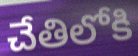
చేతిలోకి